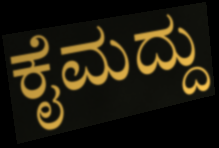
ಕೈಮದ್ದು